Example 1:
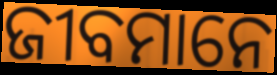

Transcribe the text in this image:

ଜୀବମାନେ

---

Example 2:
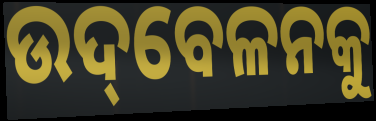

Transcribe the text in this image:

ଉଦ୍‌ବେଳନକୁ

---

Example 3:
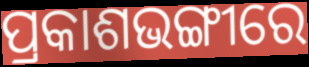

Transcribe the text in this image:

ପ୍ରକାଶଭଙ୍ଗୀରେ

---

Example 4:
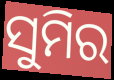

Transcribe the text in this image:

ସୁମିର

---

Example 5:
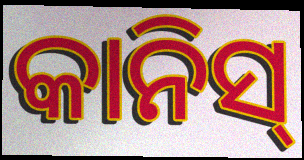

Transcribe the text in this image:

କାନିସ୍